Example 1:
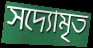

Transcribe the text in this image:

সদ্যোমৃত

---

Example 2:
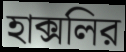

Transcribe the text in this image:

হাক্সলির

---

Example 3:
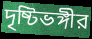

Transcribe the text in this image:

দৃষ্টিভঙ্গীর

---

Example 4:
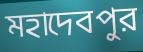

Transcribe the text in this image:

মহাদেবপুর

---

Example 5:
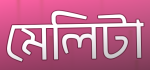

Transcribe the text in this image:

মেলিটা